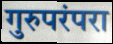
गुरुपरंपरा